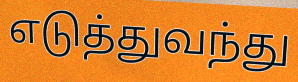
எடுத்துவந்து